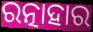
ରତ୍ନାହାର